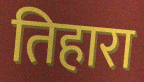
तिहारा